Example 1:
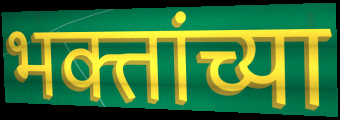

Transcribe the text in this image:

भक्तांच्या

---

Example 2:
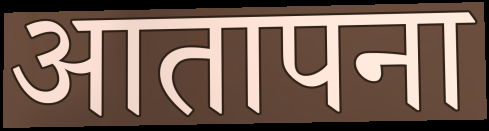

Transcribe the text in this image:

आतापना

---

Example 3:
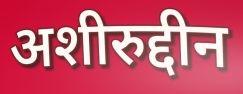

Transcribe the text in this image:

अशीरुद्दीन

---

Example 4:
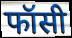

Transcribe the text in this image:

फॉसी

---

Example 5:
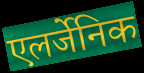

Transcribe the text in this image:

एलर्जेनिक